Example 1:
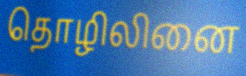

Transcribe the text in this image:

தொழிலினை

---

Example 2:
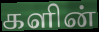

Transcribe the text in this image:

களின்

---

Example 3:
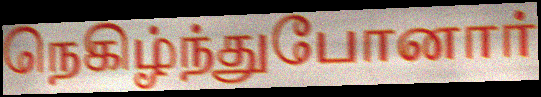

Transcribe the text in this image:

நெகிழ்ந்துபோனார்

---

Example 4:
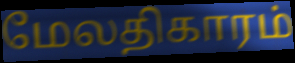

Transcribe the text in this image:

மேலதிகாரம்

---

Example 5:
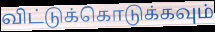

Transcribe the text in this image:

விட்டுக்கொடுக்கவும்